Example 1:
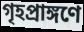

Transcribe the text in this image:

গৃহপ্রাঙ্গণে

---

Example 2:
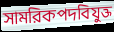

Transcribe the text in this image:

সামরিকপদবিযুক্ত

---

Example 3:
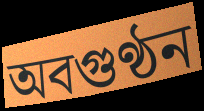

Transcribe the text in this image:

অবগুণ্ঠন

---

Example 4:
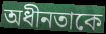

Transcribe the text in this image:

অধীনতাকে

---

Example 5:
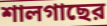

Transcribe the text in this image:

শালগাছের